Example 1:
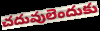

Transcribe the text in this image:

చదువులెందుకు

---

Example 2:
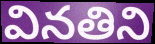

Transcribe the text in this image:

వినతిని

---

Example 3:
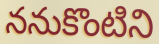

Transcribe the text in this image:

ననుకొంటిని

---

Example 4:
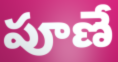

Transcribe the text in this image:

పూణే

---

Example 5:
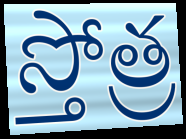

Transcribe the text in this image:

స్తోత్ర